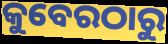
କୁବେରଠାରୁ